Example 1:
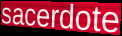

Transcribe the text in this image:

sacerdote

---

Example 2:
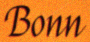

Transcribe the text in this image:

Bonn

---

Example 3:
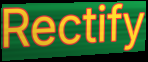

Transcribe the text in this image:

Rectify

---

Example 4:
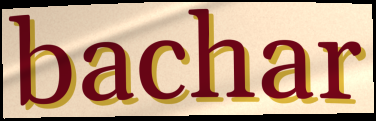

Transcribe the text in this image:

bachar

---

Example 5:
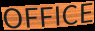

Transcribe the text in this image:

OFFICE